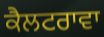
ਕੈਲਟਰਾਵਾ